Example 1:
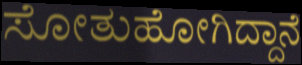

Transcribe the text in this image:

ಸೋತುಹೋಗಿದ್ದಾನೆ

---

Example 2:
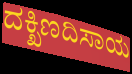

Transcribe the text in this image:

ದಕ್ಖಿಣದಿಸಾಯ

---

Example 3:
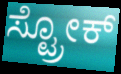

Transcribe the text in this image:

ಸ್ಟ್ರೋಕ್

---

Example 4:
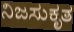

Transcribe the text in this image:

ನಿಜಸುಕೃತ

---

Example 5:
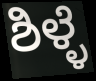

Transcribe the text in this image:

ಶಿಳ್ಳೆ